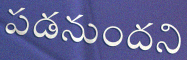
పడనుందని